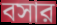
বসার